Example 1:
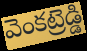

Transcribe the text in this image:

వెంకట్రెడ్డి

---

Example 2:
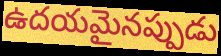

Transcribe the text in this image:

ఉదయమైనప్పుడు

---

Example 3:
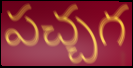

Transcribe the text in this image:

పచ్చగ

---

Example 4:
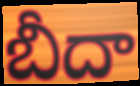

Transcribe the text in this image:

బీదా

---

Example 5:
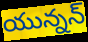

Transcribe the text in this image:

యున్నన్